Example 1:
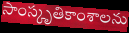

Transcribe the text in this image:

సాంస్కృతికాంశాలను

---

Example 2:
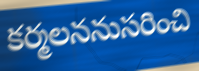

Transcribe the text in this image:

కర్మలననుసరించి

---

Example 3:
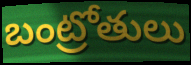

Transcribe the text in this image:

బంట్రోతులు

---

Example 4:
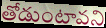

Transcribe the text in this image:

తోడుంటావని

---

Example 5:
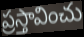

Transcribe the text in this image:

ప్రస్తావించు